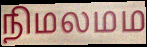
நிமலமம